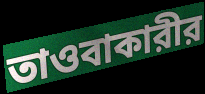
তাওবাকারীর